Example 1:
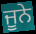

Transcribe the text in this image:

ਜੂਨੇ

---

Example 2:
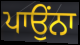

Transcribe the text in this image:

ਪਾਉਂਨਾ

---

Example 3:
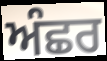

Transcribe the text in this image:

ਅੰਛਰ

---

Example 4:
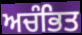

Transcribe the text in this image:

ਅਚੰਭਿਤ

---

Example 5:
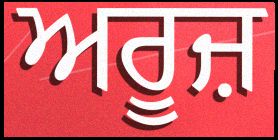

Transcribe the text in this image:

ਅਰੂਜ਼